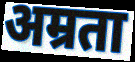
अम्रता